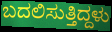
ಬದಲಿಸುತ್ತಿದ್ದಳು